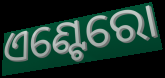
ଏଣ୍ଟେରୋ